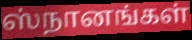
ஸ்நானங்கள்